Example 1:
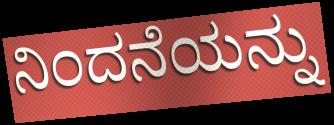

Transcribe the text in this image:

ನಿಂದನೆಯನ್ನು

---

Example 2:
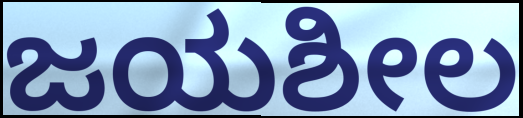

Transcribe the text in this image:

ಜಯಶೀಲ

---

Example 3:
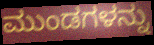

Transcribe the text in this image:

ಮುಂಡಗಳನ್ನು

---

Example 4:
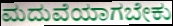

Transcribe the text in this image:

ಮದುವೆಯಾಗಬೇಕು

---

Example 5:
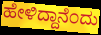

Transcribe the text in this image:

ಹೇಳಿದ್ದಾನೆಂದು